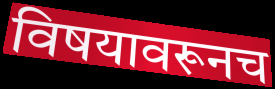
विषयावरूनच